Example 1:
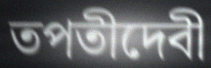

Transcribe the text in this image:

তপতীদেবী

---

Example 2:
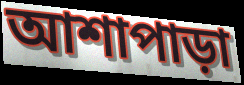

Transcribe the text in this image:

আশাপাড়া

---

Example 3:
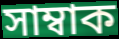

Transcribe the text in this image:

সাম্বাক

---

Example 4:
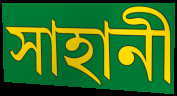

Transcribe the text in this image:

সাহানী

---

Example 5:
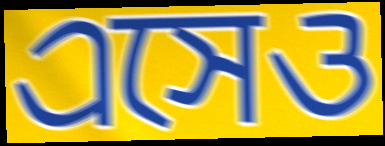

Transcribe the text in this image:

এসেও